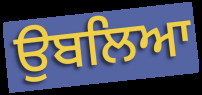
ਉਬਲਿਆ